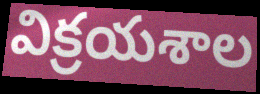
విక్రయశాల